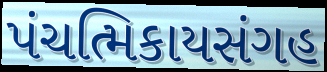
પંચત્મિકાયસંગહ